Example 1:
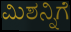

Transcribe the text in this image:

ಮಿಶನ್ನಿಗೆ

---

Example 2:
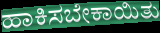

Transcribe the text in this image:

ಹಾಕಿಸಬೇಕಾಯಿತು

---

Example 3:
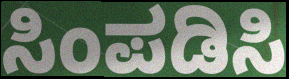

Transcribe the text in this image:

ಸಿಂಪಡಿಸಿ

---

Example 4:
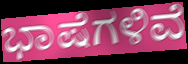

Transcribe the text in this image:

ಭಾಷೆಗಳಿವೆ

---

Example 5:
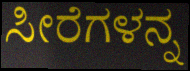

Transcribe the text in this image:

ಸೀರೆಗಳನ್ನ